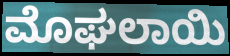
ಮೊಘಲಾಯಿ